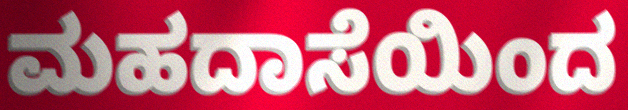
ಮಹದಾಸೆಯಿಂದ